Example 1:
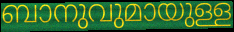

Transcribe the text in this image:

ബാനുവുമായുള്ള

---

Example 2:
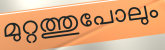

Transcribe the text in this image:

മുറ്റത്തുപോലും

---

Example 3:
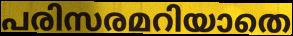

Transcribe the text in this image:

പരിസരമറിയാതെ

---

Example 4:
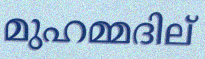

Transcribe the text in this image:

മുഹമ്മദില്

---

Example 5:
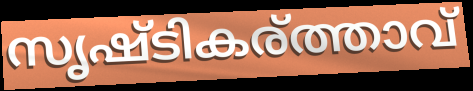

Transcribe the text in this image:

സൃഷ്ടികര്ത്താവ്